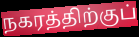
நகரத்திற்குப்